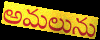
అమలును